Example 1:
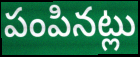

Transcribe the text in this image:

పంపినట్లు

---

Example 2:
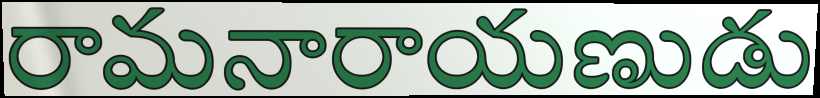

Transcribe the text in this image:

రామనారాయణుడు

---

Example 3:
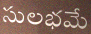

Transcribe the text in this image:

సులభమే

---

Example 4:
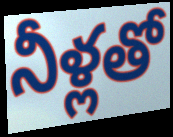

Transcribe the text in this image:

నీళ్లతో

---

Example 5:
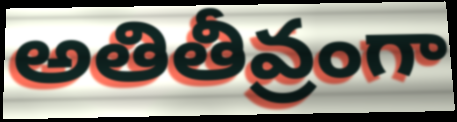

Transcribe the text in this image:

అతితీవ్రంగా